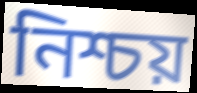
নিশ্চয়